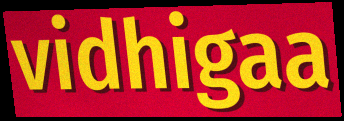
vidhigaa